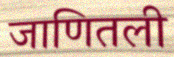
जाणितली